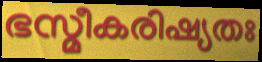
ഭസ്മീകരിഷ്യതഃ